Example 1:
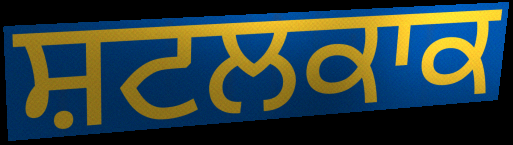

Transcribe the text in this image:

ਸ਼ਟਲਕਾਕ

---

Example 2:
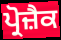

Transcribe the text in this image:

ਪ੍ਰੋਜ਼ੈਕ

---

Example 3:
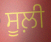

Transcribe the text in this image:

ਸੂਲ਼ੀ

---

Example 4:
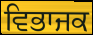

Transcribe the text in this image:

ਵਿਭਾਜਕ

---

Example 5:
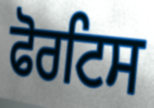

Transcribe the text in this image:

ਫੋਰਟਿਸ